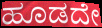
ಹೂಡದೇ